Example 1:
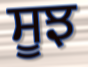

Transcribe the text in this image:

ਸੂਝ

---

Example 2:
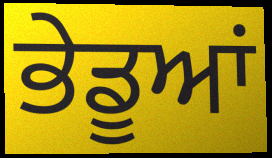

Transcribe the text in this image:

ਭੇਡੂਆਂ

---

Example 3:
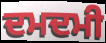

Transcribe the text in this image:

ਦਮਦਮੀ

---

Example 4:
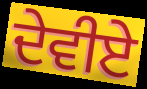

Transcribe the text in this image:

ਦੇਵੀਏ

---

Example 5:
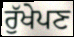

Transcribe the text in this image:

ਰੁੱਖੇਪਣ